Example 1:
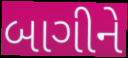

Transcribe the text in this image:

બાગીને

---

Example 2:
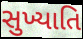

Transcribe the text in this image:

સુખ્યાતિ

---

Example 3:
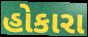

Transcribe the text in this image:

હોકારા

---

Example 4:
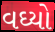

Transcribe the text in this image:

વઘ્યો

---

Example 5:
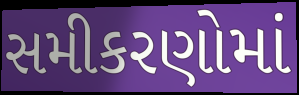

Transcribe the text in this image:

સમીકરણોમાં